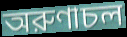
অরুণাচল